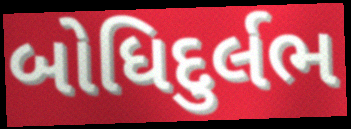
બોધિદુર્લભ